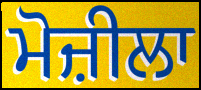
ਮੋਜ਼ੀਲਾ